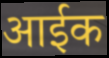
आईक